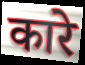
कारे